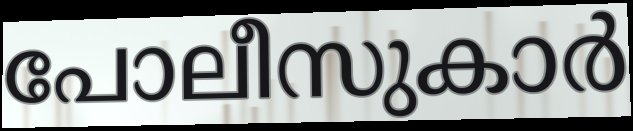
പോലീസുകാർ